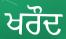
ਖਰੌਦ